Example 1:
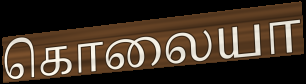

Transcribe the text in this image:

கொலையா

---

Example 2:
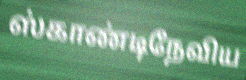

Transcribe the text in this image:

ஸ்காண்டிநேவிய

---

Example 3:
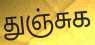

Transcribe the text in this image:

துஞ்சுக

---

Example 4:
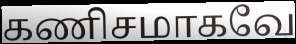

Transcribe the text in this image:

கணிசமாகவே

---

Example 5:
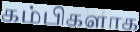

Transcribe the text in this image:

கம்பிகளாக